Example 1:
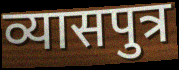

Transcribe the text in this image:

व्यासपुत्र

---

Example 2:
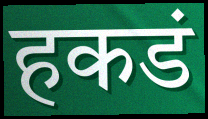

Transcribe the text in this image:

हकडं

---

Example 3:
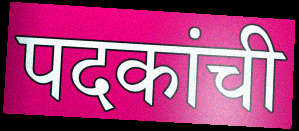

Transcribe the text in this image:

पदकांची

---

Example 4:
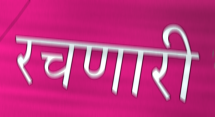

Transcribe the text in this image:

रचणारी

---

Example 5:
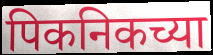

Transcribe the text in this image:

पिकनिकच्या